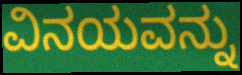
ವಿನಯವನ್ನು